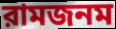
রামজনম